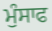
ਮੁੰਸਾਫ